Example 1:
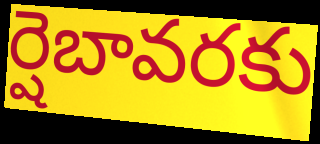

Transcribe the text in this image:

ర్షెబావరకు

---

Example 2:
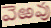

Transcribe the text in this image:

వెఱవు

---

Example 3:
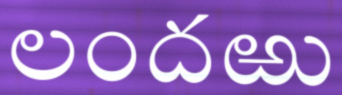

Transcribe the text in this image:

లందఱు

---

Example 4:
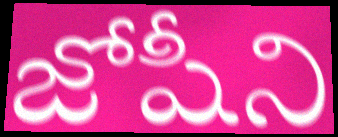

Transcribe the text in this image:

జోషీని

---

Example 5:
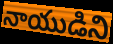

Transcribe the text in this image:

నాయుడిని